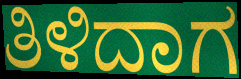
ತಿಳಿದಾಗ